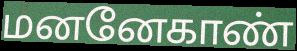
மனனேகாண்